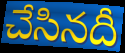
చేసినదీ